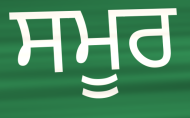
ਸਮੂਰ